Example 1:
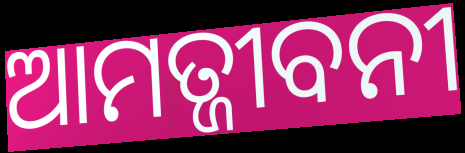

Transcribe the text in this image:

ଆମତ୍ଜୀବନୀ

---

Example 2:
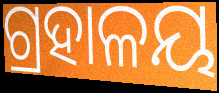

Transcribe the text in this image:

ଗ୍ରହାଳୟ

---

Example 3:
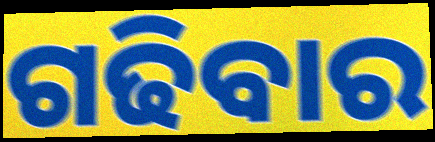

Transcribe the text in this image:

ଗଢିବାର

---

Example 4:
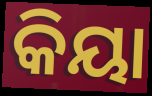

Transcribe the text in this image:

କିୟା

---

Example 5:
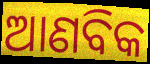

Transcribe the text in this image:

ଆଣବିକ